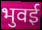
भुवई